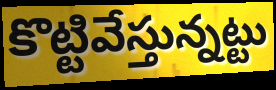
కొట్టివేస్తున్నట్టు